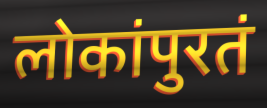
लोकांपुरतं